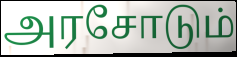
அரசோடும்